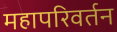
महापरिवर्तन